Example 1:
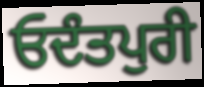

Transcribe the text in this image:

ਓਦੰਤਪੁਰੀ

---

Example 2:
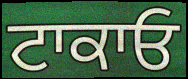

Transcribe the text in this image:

ਟਾਕਾਓ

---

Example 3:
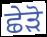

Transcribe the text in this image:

ਛੇੜੋ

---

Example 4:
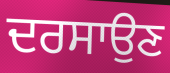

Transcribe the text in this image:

ਦਰਸਾਉਣ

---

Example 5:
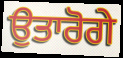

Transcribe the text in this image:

ਉਤਾਰੋਗੇ